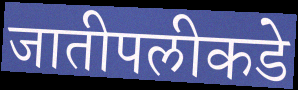
जातीपलीकडे